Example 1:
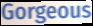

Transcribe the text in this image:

Gorgeous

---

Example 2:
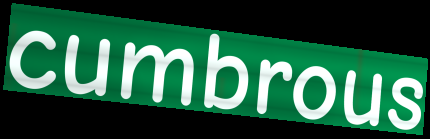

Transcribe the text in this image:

cumbrous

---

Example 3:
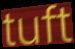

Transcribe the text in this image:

tuft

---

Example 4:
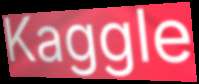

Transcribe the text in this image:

Kaggle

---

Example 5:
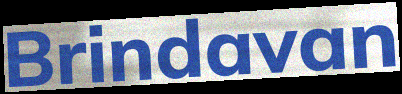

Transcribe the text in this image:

Brindavan